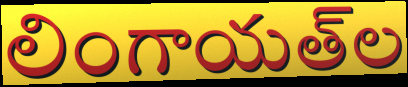
లింగాయత్‌ల